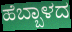
ಹೆಬ್ಬಾಳದ